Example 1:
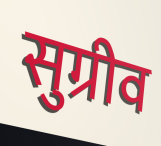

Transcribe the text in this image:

सुग्रीव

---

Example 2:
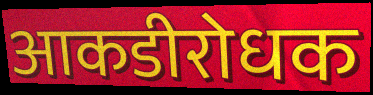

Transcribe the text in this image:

आकडीरोधक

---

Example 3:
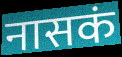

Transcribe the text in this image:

नासकं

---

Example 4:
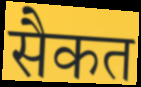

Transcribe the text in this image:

सैकत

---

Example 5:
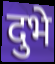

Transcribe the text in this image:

दुभे